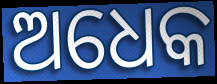
ଅଧେକ